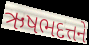
ઋષભદત્તને